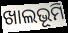
ଖାଲଭୂମି